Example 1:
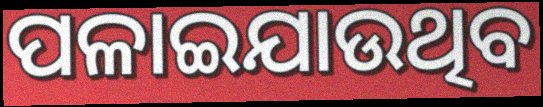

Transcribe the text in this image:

ପଳାଇଯାଉଥିବ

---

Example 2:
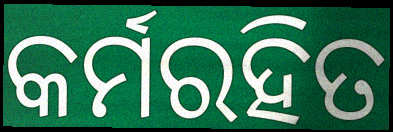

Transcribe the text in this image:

କର୍ମରହିତ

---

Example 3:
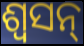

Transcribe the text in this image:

ଶ୍ୱସନ୍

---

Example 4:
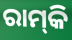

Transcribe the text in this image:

ରାମ୍‌କି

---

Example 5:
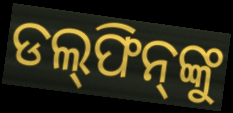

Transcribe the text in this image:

ଡଲ୍‌ଫିନ୍‌ଙ୍କୁ